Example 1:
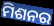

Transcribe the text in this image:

ମିଶନର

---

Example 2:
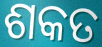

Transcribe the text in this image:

ଶକତ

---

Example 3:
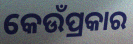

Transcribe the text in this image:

କେଉଁପ୍ରକାର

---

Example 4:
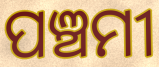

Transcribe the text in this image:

ପଞ୍ଚମୀ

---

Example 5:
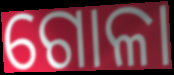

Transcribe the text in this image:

ଗୋଳା